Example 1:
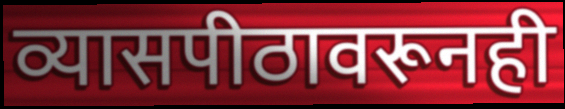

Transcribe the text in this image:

व्यासपीठावरूनही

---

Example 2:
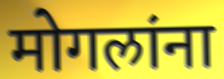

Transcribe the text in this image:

मोगलांना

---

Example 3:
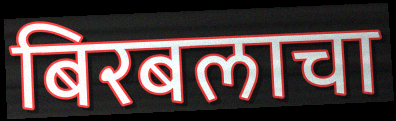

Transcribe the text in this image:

बिरबलाचा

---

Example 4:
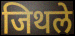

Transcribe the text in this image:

जिथले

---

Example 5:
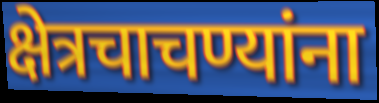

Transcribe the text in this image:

क्षेत्रचाचण्यांना